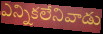
ఎన్నికలేనివాడు